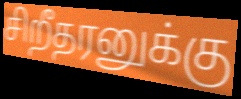
சிறீதரனுக்கு